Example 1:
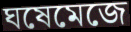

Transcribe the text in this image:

ঘষেমেজে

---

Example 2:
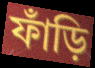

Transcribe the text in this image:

ফাঁড়ি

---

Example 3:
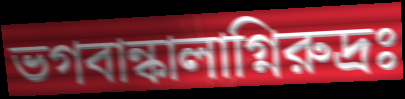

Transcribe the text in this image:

ভগবান্কালাগ্নিরুদ্রঃ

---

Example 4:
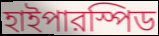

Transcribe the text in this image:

হাইপারস্পিড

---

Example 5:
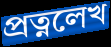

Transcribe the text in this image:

প্রত্নলেখ